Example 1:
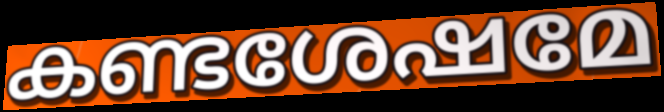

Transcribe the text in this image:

കണ്ടശേഷമേ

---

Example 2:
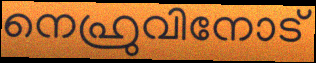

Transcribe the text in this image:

നെഹ്രുവിനോട്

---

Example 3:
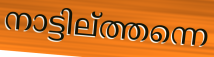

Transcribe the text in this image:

നാട്ടില്ത്തന്നെ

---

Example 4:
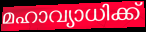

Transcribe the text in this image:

മഹാവ്യാധിക്ക്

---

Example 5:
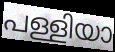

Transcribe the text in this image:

പള്ളിയാ